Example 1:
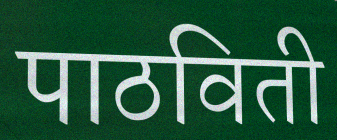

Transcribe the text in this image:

पाठविती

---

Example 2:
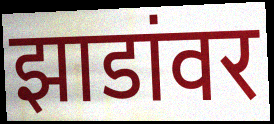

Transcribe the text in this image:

झाडांवर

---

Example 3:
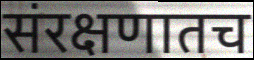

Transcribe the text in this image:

संरक्षणातच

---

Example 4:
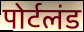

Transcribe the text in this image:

पोर्टलंड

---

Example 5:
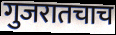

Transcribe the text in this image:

गुजरातचाच